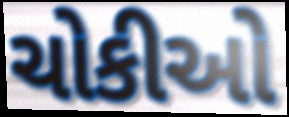
ચોકીઓ